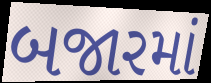
બજારમાં